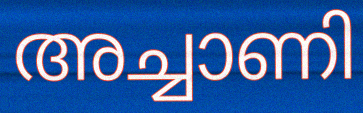
അച്ചാണി